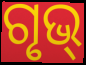
ଗୃଭ୍